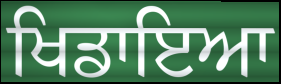
ਖਿਡਾਇਆ